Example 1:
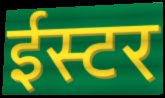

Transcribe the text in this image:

ईस्टर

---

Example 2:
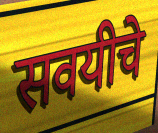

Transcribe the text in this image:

सवयीचे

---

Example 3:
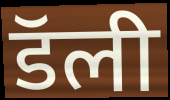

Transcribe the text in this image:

डॅली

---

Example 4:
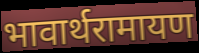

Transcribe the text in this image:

भावार्थरामायण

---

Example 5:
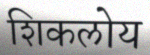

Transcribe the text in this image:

शिकलोय